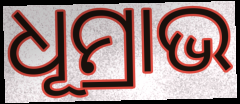
ଧୂମ୍ରାଭ